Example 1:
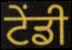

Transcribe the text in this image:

ਟੇਂਡੀ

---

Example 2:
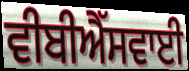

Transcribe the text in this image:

ਵੀਬੀਐੱਸਵਾਈ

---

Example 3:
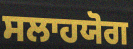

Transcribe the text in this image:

ਸਲਾਹਯੋਗ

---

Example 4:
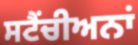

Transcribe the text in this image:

ਸਟੈਂਚੀਅਨਾਂ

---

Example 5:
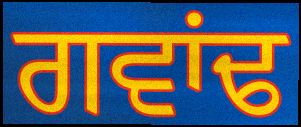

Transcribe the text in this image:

ਗਵਾਂਢ